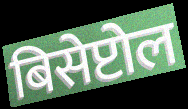
बिसेप्टोल